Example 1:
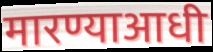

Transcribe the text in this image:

मारण्याआधी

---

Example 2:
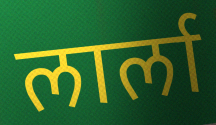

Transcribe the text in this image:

लार्ला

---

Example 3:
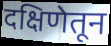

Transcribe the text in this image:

दक्षिणेतून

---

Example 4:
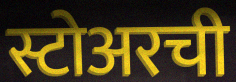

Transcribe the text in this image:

स्टोअरची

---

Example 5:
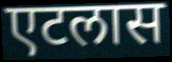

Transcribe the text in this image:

एटलास